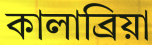
কালাব্রিয়া